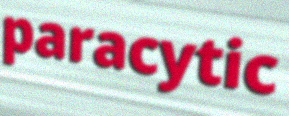
paracytic